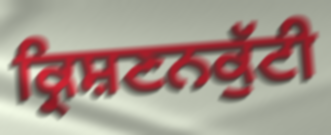
ਕ੍ਰਿਸ਼ਣਨਕੁੱਟੀ